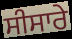
ਸੀਸਾਰੇ